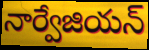
నార్వేజియన్